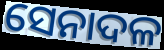
ସେନାଦଳ